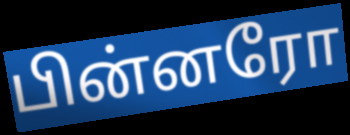
பின்னரோ